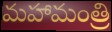
మహామంత్రి